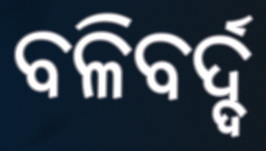
ବଳିବର୍ଦ୍ଦ